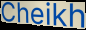
Cheikh